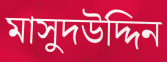
মাসুদউদ্দিন